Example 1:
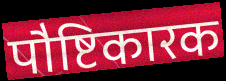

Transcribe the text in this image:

पौष्टिकारक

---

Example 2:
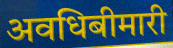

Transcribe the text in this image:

अवधिबीमारी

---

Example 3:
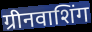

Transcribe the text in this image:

ग्रीनवाशिंग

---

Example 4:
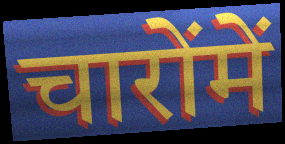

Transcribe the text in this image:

चारोंमें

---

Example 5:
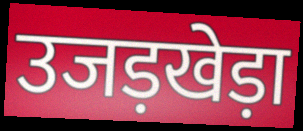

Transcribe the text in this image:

उजड़खेड़ा